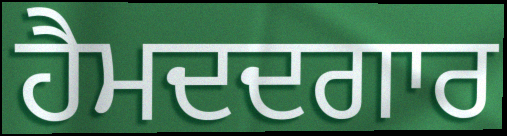
ਹੈਮਦਦਗਾਰ